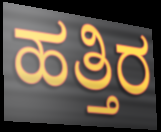
ಹತ್ತಿರ